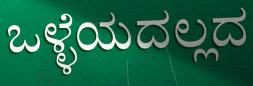
ಒಳ್ಳೆಯದಲ್ಲದ